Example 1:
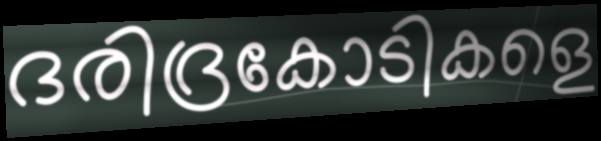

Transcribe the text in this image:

ദരിദ്രകോടികളെ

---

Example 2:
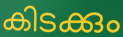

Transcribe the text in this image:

കിടക്കും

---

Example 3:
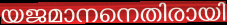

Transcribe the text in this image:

യജമാനനെതിരായി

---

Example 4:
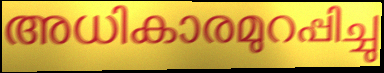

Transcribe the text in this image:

അധികാരമുറപ്പിച്ചു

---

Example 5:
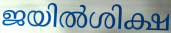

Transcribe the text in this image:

ജയിൽശിക്ഷ